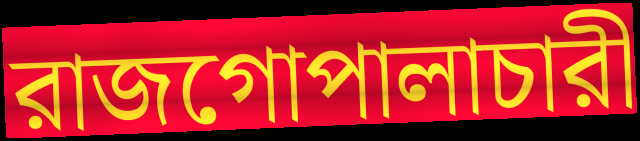
রাজগোপালাচারী